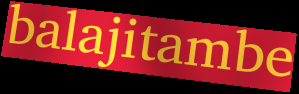
balajitambe